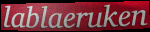
lablaeruken